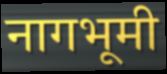
नागभूमी